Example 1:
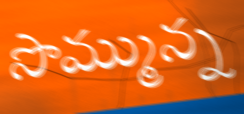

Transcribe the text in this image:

సొమ్మున్న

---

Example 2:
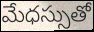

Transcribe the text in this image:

మేధస్సుతో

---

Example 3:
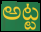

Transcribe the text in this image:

అట్ట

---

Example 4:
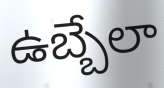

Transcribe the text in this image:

ఉబ్బేలా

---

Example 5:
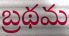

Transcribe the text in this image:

బ్రథమ